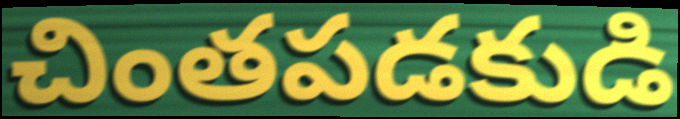
చింతపడకుడి